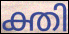
ക്തി